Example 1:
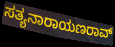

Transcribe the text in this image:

ಸತ್ಯನಾರಾಯಣರಾವ್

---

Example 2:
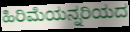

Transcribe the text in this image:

ಹಿರಿಮೆಯನ್ನರಿಯದ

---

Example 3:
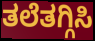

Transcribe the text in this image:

ತಲೆತಗ್ಗಿಸಿ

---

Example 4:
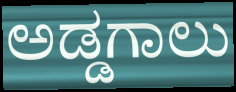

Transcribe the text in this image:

ಅಡ್ಡಗಾಲು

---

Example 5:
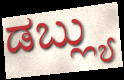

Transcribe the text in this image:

ಡಬ್ಲ್ಯು